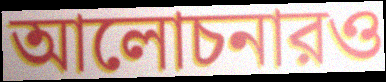
আলোচনারও